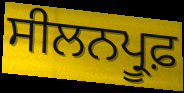
ਸੀਲਨਪ੍ਰੂਫ਼